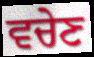
ਵਚੇਣ